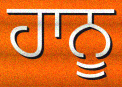
ਹਾਨੂ